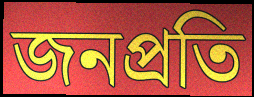
জনপ্রতি